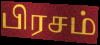
பிரசம்